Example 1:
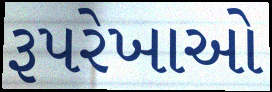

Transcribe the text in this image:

રૂપરેખાઓ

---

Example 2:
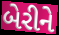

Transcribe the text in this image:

બેરીને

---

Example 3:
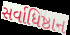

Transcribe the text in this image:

સર્વાધિષ્ઠાન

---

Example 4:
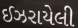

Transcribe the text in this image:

ઈઝરાયેલી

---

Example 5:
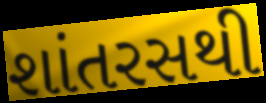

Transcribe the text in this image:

શાંતરસથી